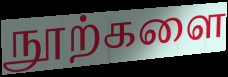
நூற்களை